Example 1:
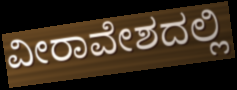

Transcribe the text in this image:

ವೀರಾವೇಶದಲ್ಲಿ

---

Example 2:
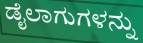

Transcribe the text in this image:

ಡೈಲಾಗುಗಳನ್ನು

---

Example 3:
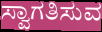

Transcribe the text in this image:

ಸ್ವಾಗತಿಸುವ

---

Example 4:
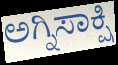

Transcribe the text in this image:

ಅಗ್ನಿಸಾಕ್ಷಿ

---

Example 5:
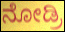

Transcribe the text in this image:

ನೋಡ್ರಿ